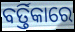
ବର୍ତ୍ତିକାରେ